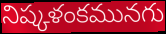
నిష్కళంకమునగు